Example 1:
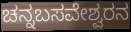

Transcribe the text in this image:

ಚನ್ನಬಸವೇಶ್ವರನ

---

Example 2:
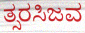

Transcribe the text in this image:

ತ್ಸರಸಿಜವ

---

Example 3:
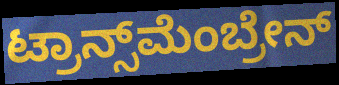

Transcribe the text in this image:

ಟ್ರಾನ್ಸ್‌ಮೆಂಬ್ರೇನ್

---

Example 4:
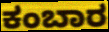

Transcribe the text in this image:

ಕಂಬಾರ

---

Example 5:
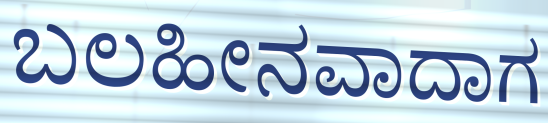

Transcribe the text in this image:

ಬಲಹೀನವಾದಾಗ